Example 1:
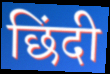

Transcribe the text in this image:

छिंदी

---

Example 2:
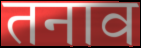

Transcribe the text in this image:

तनाव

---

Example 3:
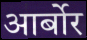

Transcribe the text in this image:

आर्बोर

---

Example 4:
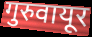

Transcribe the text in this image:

गुरुवायूर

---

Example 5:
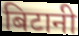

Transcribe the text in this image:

बिटानी